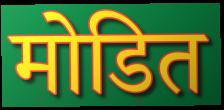
मोडित